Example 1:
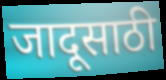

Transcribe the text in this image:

जादूसाठी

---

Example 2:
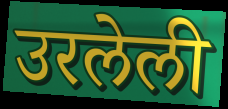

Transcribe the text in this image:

उरलेली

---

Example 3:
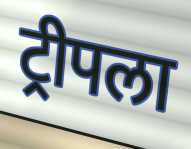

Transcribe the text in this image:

ट्रीपला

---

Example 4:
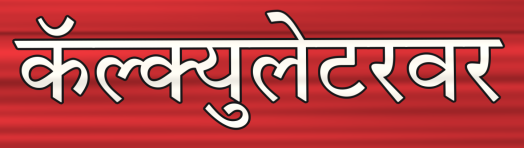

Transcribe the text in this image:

कॅल्क्युलेटरवर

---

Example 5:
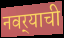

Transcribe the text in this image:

नवर्याची